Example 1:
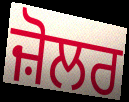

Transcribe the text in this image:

ਜ਼ੋਲਰ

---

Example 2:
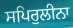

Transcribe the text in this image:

ਸਪਿਰੁਲੀਨਾ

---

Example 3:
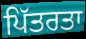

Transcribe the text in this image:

ਪਿੱਤਰਤਾ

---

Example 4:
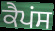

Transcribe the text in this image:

ਕੈਪਂਸ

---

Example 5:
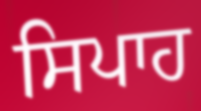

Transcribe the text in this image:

ਸਿਪਾਹ